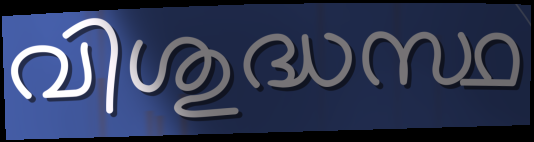
വിശുദ്ധസ്ഥ